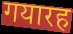
गयारह